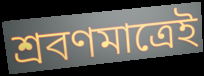
শ্রবণমাত্রেই